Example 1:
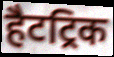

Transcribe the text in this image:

हैटट्रिक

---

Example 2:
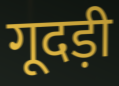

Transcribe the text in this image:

गूदड़ी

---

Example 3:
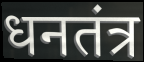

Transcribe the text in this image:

धनतंत्र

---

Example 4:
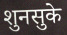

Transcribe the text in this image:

शुनसुके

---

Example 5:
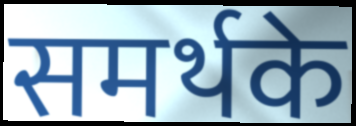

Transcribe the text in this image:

समर्थके